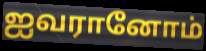
ஐவரானோம்